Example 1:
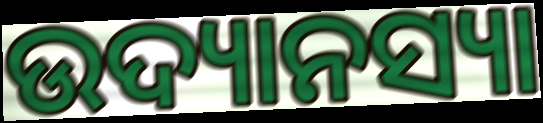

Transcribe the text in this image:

ଉଦ୍ୟାନସ୍ୟା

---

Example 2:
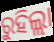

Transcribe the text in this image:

ରୁହିଲ୍ଲା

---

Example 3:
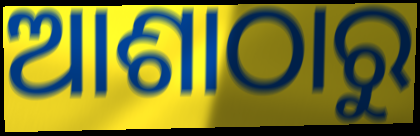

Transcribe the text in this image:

ଆଶାଠାରୁ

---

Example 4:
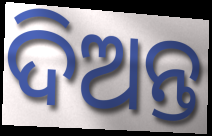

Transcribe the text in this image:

ଦିଅନ୍ତ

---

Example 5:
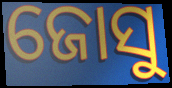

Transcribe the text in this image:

ଜୋସୁ